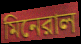
মিনেরাল